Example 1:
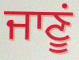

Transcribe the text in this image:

ਜਾਣੂਂ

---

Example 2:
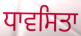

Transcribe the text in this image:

ਧਾਵਸਿਤਾ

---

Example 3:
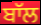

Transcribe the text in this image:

ਬਾੱਲ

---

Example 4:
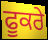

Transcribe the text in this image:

ਫੂਕਰੇ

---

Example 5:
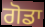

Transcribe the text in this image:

ਗੋਡਾ